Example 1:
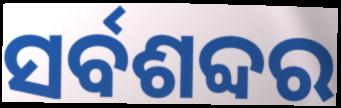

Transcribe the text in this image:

ସର୍ବଶବ୍ଦର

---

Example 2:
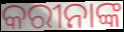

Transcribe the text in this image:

କରୀନାଙ୍କ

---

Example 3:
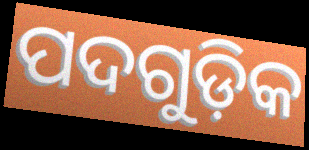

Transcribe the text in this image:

ପଦଗୁଡ଼ିକ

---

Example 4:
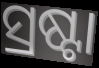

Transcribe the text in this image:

ସ୍ରଷ୍ଟା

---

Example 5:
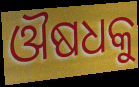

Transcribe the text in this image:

ଔଷଧକୁ